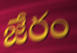
జేరం